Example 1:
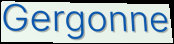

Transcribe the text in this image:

Gergonne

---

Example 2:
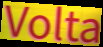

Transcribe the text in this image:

Volta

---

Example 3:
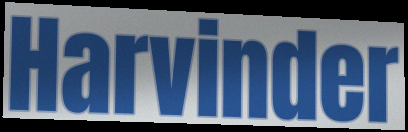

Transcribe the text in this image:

Harvinder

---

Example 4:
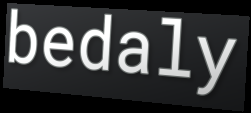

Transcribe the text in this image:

bedaly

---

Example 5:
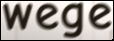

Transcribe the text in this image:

wege